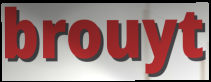
brouyt